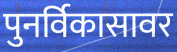
पुनर्विकासावर